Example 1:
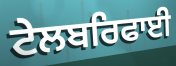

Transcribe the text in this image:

ਟੇਲਬਰਿਫਾਈ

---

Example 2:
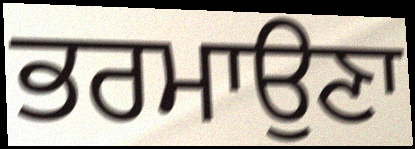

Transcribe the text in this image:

ਭਰਮਾਉਣਾ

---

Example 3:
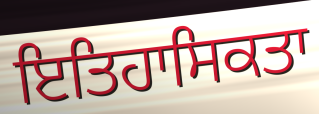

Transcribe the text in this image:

ਇਤਿਹਾਸਿਕਤਾ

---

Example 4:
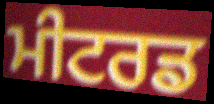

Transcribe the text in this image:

ਮੀਟਰਡ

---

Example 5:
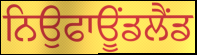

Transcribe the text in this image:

ਨਿਉਫਾਊਂਡਲੈਂਡ